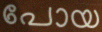
പോയ